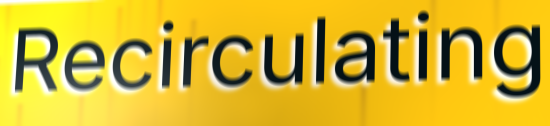
Recirculating